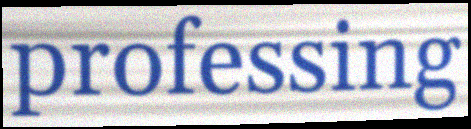
professing